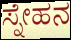
ಸ್ನೇಹನ